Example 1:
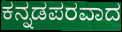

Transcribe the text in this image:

ಕನ್ನಡಪರವಾದ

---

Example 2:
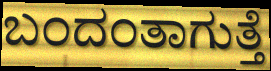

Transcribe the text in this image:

ಬಂದಂತಾಗುತ್ತೆ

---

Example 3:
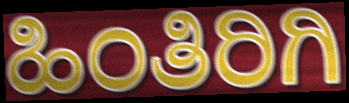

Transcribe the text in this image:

ಹಿಂತಿರಿಗಿ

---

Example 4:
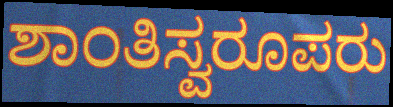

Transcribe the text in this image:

ಶಾಂತಿಸ್ವರೂಪರು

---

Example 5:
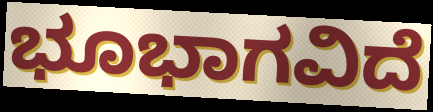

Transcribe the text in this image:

ಭೂಭಾಗವಿದೆ